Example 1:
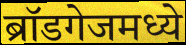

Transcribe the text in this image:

ब्रॉडगेजमध्ये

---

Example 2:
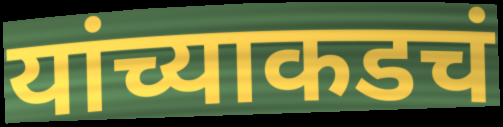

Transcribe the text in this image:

यांच्याकडचं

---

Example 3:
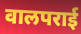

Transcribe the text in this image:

वालपराई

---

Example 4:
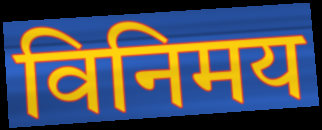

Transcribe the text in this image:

विनिमय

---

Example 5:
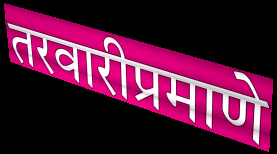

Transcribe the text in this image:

तरवारीप्रमाणे